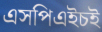
এসপিএইচই